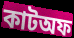
কাটঅফ